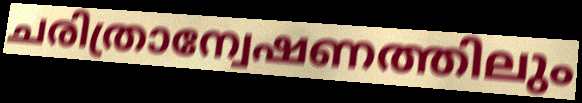
ചരിത്രാന്വേഷണത്തിലും